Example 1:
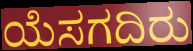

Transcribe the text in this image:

ಯೆಸಗದಿರು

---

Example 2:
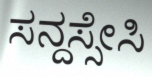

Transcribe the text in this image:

ಸನ್ದಸ್ಸೇಸಿ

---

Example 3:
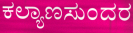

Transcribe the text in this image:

ಕಲ್ಯಾಣಸುಂದರ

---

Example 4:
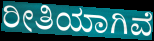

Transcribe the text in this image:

ರೀತಿಯಾಗಿವೆ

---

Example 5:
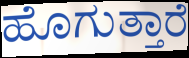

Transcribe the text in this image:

ಹೊಗುತ್ತಾರೆ